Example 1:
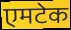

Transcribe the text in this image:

एमटेक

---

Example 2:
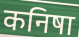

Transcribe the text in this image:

कनिषा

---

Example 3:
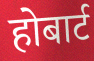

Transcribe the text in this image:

होबार्ट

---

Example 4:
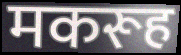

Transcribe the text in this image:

मकरूह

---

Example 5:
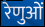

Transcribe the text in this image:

रेणुओं